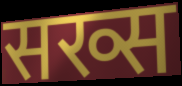
सख्स